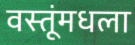
वस्तूंमधला